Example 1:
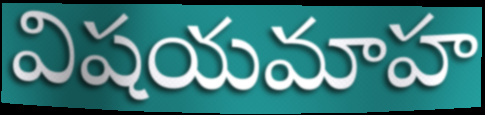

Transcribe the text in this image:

విషయమాహ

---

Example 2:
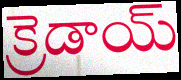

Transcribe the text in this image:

క్రెడాయ్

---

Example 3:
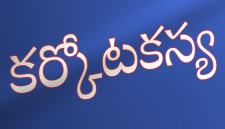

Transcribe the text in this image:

కర్కోటకస్య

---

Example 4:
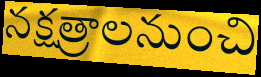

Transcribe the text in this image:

నక్షత్రాలనుంచి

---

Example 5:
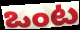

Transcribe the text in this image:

ఒంట